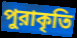
পুরাকৃতি